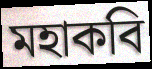
মহাকবি